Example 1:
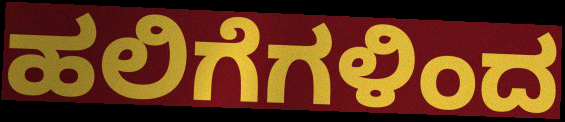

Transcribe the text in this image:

ಹಲಿಗೆಗಳಿಂದ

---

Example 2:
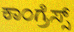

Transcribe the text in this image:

ಕಾಂಗ್ರೆಸ್ಸ್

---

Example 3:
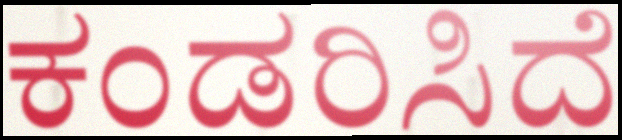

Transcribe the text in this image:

ಕಂಡರಿಸಿದೆ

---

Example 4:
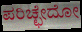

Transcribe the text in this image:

ಪರಿಚ್ಛೇದೋ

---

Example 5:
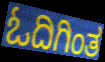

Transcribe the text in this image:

ಓದಿಗಿಂತ